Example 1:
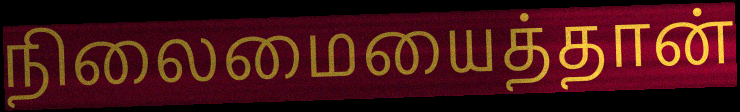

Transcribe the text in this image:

நிலைமையைத்தான்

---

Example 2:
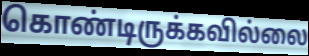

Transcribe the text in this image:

கொண்டிருக்கவில்லை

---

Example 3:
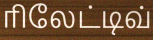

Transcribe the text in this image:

ரிலேட்டிவ்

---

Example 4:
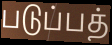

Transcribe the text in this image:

படுப்பத்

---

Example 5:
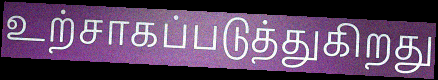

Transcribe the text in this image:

உற்சாகப்படுத்துகிறது